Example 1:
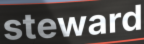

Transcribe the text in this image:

steward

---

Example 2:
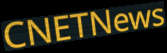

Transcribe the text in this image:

CNETNews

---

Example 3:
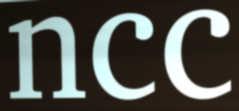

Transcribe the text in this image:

ncc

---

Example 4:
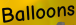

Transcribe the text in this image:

Balloons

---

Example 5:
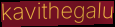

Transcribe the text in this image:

kavithegalu